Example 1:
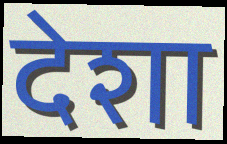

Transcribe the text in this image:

देशा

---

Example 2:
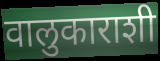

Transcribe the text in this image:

वालुकाराशी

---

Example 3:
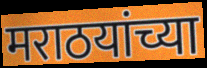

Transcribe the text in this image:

मराठयांच्या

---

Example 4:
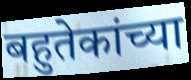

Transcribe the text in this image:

बहुतेकांच्या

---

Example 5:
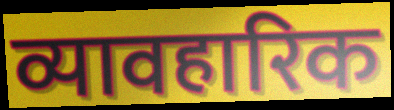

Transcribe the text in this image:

व्यावहारिक